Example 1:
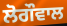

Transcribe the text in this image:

ਲੋਗੌਵਾਲ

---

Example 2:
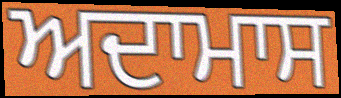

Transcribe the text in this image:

ਅਦਾਮਾਸ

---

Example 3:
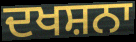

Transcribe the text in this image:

ਦਖਸ਼ਨਾ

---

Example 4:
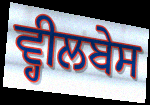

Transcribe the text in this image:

ਵ੍ਹੀਲਬੇਸ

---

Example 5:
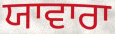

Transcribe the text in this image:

ਯਾਵਾਰਾ